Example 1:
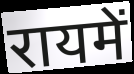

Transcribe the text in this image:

रायमें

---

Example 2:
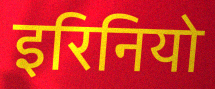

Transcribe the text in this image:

इरिनियो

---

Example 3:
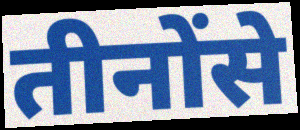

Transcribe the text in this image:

तीनोंसे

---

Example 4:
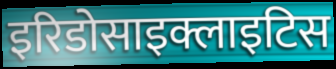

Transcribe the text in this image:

इरिडोसाइक्लाइटिस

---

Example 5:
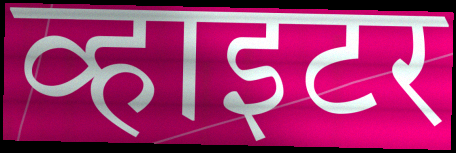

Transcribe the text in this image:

व्हाइटर